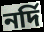
নর্দি